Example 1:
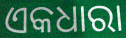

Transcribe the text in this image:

ଏକଧାରା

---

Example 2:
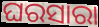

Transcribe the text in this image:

ଘରସାରା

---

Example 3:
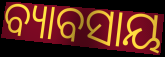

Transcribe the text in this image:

ବ୍ୟାବସାୟ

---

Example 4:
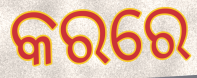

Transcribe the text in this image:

କରରେ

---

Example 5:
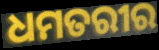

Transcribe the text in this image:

ଧମତରୀର